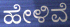
ಹೇಳಿವೆ